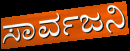
ಸಾರ್ವಜನಿ